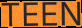
TEEN